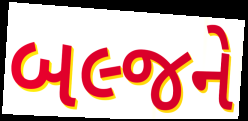
બલ્જને